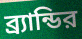
ব্র্যান্ডির